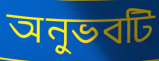
অনুভবটি